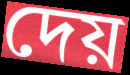
দেয়